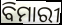
ବିମାରୀ